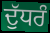
ਦੁੱਧਰੰ